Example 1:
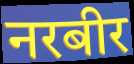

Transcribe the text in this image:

नरबीर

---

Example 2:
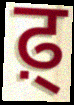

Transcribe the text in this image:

ड़्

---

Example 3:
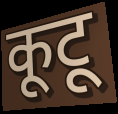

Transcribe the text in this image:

कूटू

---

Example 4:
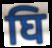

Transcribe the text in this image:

घि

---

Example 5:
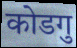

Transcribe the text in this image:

कोडगु